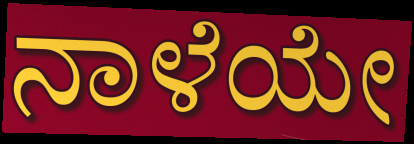
ನಾಳೆಯೇ